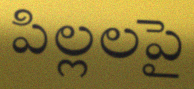
పిల్లలపై